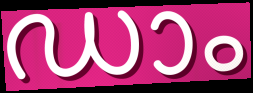
ഡാം